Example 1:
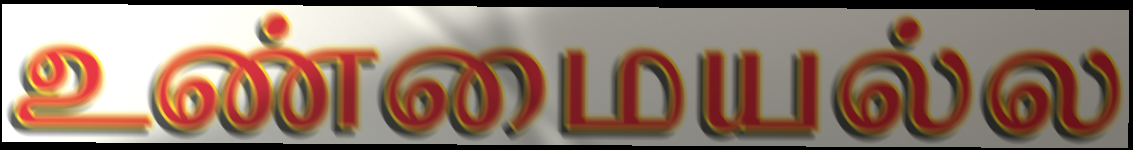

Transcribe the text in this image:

உண்மையல்ல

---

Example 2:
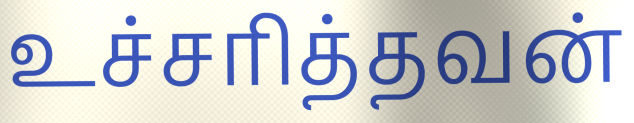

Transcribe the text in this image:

உச்சரித்தவன்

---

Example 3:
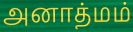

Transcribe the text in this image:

அனாத்மம்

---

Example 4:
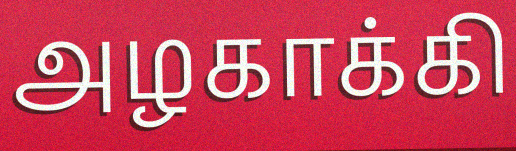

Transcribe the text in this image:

அழகாக்கி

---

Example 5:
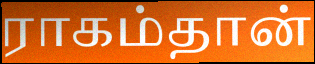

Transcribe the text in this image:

ராகம்தான்